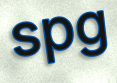
spg